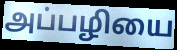
அப்பழியை